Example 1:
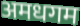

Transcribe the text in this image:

अमधगम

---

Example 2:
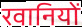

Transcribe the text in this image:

रवानियों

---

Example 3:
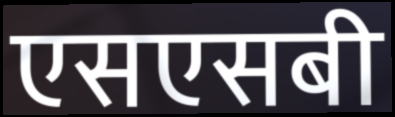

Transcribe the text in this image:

एसएसबी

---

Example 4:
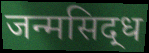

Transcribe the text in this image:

जन्मसिद्ध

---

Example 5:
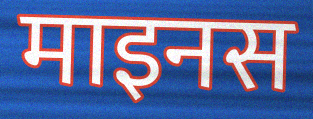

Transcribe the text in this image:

माइनस